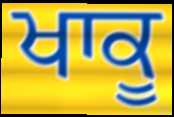
ਖਾਕੂ